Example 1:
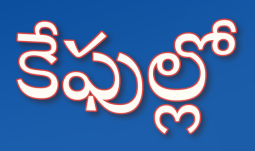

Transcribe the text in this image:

కేఫుల్లో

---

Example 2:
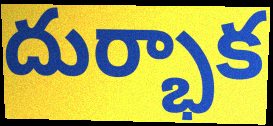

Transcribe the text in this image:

దుర్భాక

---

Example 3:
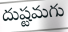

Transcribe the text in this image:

దుష్టమగు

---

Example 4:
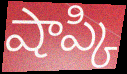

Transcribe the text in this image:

షాప్కి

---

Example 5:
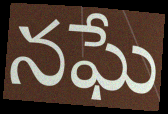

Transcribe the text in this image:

నఘే